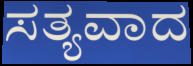
ಸತ್ಯವಾದ